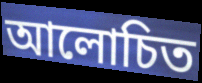
আলোচিত